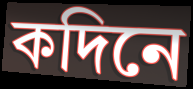
কদিনে